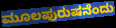
ಮೂಲಪುರುಷನೆಂದು